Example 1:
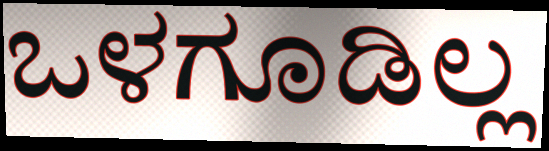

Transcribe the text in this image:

ಒಳಗೂಡಿಲ್ಲ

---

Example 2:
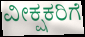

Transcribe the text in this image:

ವೀಕ್ಷಕರಿಗೆ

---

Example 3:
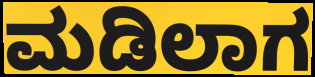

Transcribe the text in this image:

ಮಡಿಲಾಗ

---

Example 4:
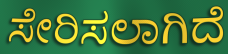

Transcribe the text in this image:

ಸೇರಿಸಲಾಗಿದೆ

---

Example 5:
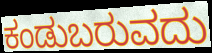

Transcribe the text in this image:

ಕಂಡುಬರುವದು